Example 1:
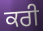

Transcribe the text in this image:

ਕਰੀ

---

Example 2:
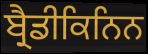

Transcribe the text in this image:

ਬ੍ਰੈਡੀਕਿਨਿਨ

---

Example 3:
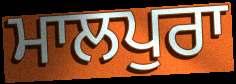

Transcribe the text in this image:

ਮਾਲਪੁਰਾ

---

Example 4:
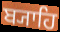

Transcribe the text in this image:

ਬ੍ਯਾਹਿ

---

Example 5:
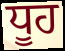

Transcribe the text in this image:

ਧੂਹ